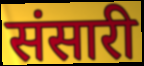
संसारी